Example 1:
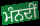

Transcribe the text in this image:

ਮੰਨਦੀਂ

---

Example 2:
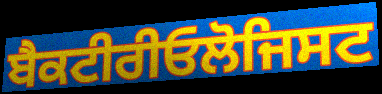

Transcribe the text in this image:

ਬੈਕਟੀਰੀਓਲੋਜਿਸਟ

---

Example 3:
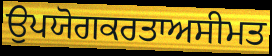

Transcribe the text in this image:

ਉਪਯੋਗਕਰਤਾਅਸੀਮਤ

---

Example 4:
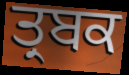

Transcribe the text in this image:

ਤ੍ਰਬਕ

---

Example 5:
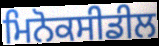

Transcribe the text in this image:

ਮਿਨੋਕਸੀਡੀਲ